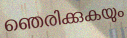
ഞെരിക്കുകയും